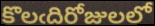
కొలఁదిరోజులలో